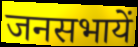
जनसभायें